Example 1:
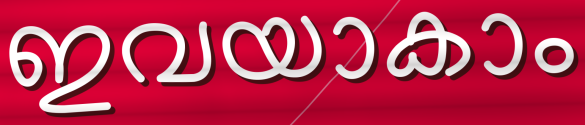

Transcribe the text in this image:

ഇവയാകാം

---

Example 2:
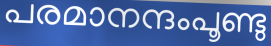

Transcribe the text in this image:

പരമാനന്ദംപൂണ്ടു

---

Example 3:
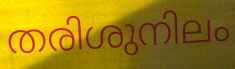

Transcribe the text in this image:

തരിശുനിലം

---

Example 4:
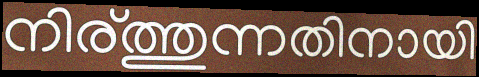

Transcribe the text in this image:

നിര്ത്തുന്നതിനായി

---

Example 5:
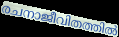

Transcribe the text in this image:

രചനാജീവിതത്തിൽ